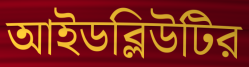
আইডব্লিউটির